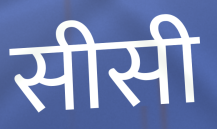
सीसी